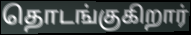
தொடங்குகிறார்